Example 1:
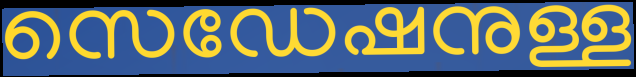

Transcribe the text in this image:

സെഡേഷനുള്ള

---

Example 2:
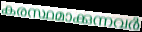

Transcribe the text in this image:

കരസ്ഥമാക്കുന്നവർ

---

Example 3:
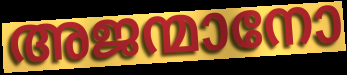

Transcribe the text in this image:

അജന്മാനോ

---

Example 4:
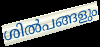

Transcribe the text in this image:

ശിൽപങ്ങളും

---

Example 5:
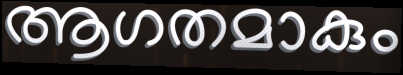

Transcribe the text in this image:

ആഗതമാകും